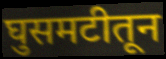
घुसमटीतून